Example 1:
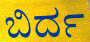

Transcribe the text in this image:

ಬಿರ್ದ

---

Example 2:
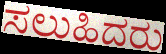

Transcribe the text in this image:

ಸಲುಹಿದರು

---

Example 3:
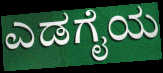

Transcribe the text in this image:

ಎಡಗೈಯ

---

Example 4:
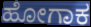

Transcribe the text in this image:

ಹೋಗಾಕ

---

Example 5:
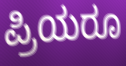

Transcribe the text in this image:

ಪ್ರಿಯರೂ